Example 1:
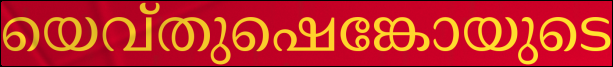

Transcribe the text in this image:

യെവ്തുഷെങ്കോയുടെ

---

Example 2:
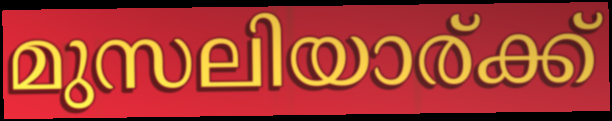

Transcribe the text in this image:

മുസലിയാര്ക്ക്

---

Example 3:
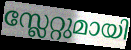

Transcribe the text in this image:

സ്ലേറ്റുമായി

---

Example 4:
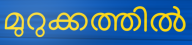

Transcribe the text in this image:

മുറുക്കത്തിൽ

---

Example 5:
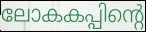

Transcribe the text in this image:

ലോകകപ്പിന്റെ